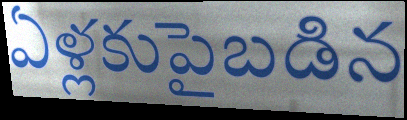
ఏళ్లకుపైబడిన